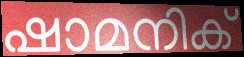
ഷാമനിക്